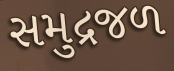
સમુદ્રજળ